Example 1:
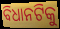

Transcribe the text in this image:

ବିଧାନଟିକୁ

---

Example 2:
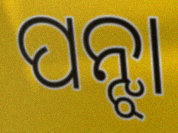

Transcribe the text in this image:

ପନ୍ଝା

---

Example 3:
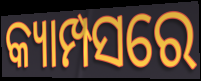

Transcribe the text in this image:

କ୍ୟାମ୍ପସରେ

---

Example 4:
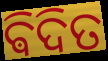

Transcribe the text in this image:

ଵିଦିତ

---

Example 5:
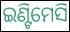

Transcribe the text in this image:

ଇଣ୍ଟିମେସି